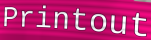
Printout